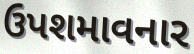
ઉપશમાવનાર